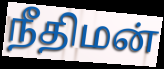
நீதிமன்